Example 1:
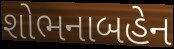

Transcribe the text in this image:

શોભનાબહેન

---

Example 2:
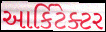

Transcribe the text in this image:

આર્કિટેક્ટર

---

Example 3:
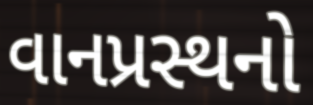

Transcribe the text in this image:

વાનપ્રસ્થનો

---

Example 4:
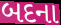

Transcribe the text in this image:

બદના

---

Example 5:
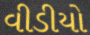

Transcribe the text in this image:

વીડીયો